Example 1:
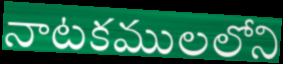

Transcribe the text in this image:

నాటకములలోని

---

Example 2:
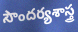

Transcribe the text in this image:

సౌందర్యశాస్త్ర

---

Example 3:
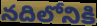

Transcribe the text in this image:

నదిలోనికి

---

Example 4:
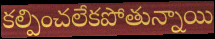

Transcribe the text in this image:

కల్పించలేకపోతున్నాయి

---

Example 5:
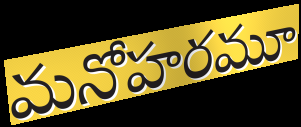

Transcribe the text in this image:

మనోహరమూ